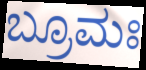
ಬ್ರೂಮಃ